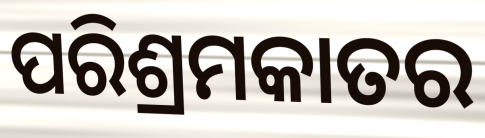
ପରିଶ୍ରମକାତର